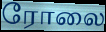
ரோலை